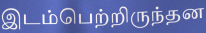
இடம்பெற்றிருந்தன